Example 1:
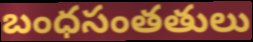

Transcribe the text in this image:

బంధసంతతులు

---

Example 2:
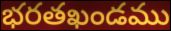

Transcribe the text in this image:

భరతఖండము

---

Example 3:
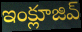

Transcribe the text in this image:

ఇంక్లూజివ్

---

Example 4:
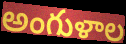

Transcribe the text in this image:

అంగుళాల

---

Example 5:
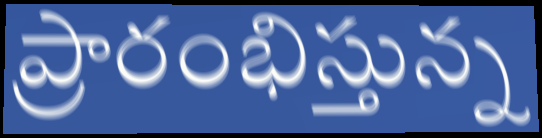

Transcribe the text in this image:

ప్రారంభిస్తున్న